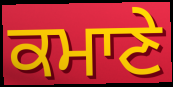
ਕਮਾਣੇ